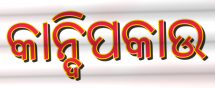
କାନ୍ଦିପକାଉ